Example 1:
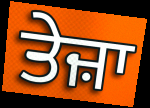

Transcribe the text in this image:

ਤੇਜ਼ਾ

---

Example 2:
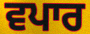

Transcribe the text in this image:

ਵਪਾਰ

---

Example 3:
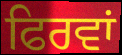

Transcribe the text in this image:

ਫਿਰਵਾਂ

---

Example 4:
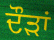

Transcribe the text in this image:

ਦੌੜਾਂ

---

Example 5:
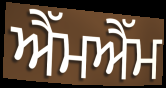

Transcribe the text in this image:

ਐੱਮਐੱਮ